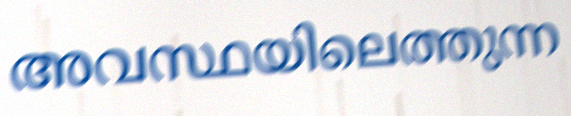
അവസ്ഥയിലെത്തുന്ന